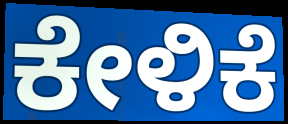
ಕೇಳಿಕೆ